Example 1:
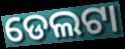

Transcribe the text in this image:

ଡେଲଟା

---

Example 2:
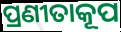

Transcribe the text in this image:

ପ୍ରଣୀତାକୂପ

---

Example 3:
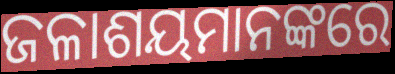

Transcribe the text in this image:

ଜଳାଶୟମାନଙ୍କରେ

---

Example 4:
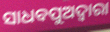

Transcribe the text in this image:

ସାଧବପୁଅଦ୍ୱାରା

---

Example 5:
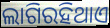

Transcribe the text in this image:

ଲାଗିରହିଥାଏ